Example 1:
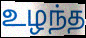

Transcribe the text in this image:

உழந்த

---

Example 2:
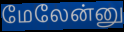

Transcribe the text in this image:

மேலேன்னு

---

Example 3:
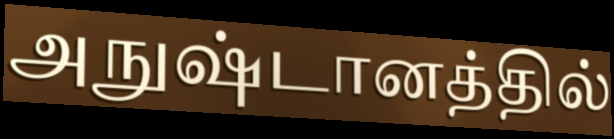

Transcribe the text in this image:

அநுஷ்டானத்தில்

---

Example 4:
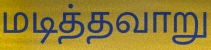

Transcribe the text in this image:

மடித்தவாறு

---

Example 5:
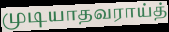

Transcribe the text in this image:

முடியாதவராய்த்